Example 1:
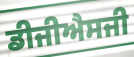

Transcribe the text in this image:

ਡੀਜੀਐਸਜੀ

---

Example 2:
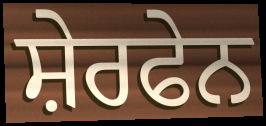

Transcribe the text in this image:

ਸ਼ੇਰਫੇਨ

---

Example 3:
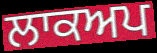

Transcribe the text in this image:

ਲਾਕਅਪ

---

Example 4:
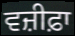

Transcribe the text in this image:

ਵਜ਼ੀਫ਼ਾ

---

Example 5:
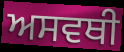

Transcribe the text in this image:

ਅਸਵਥੀ